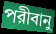
পরীবানু